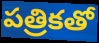
పత్రికతో